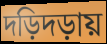
দড়িদড়ায়